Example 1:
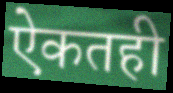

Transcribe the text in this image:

ऐकतही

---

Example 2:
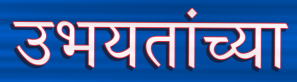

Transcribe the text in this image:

उभयतांच्या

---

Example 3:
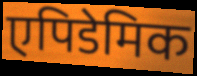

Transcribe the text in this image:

एपिडेमिक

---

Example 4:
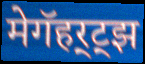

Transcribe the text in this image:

मेगॅहर्ट्झ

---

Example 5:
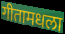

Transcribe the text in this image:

गीतामधला